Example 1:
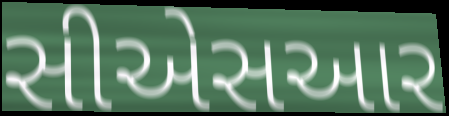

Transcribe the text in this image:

સીએસઆર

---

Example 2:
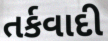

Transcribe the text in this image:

તર્કવાદી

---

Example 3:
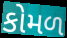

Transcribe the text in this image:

કોમળ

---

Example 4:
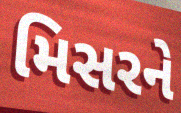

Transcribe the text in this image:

મિસરને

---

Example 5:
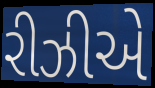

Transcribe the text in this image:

રીઝીએ